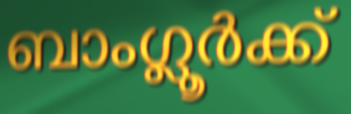
ബാംഗ്ലൂർക്ക്